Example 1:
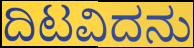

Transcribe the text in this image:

ದಿಟವಿದನು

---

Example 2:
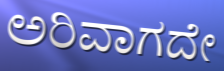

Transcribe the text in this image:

ಅರಿವಾಗದೇ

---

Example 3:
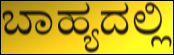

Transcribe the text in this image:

ಬಾಹ್ಯದಲ್ಲಿ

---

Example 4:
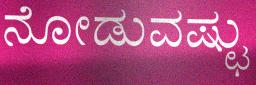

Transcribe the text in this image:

ನೋಡುವಷ್ಟು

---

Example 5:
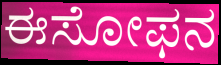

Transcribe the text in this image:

ಈಸೋಫನ